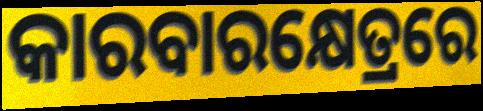
କାରବାରକ୍ଷେତ୍ରରେ